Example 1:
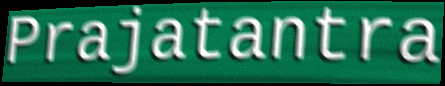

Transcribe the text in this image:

Prajatantra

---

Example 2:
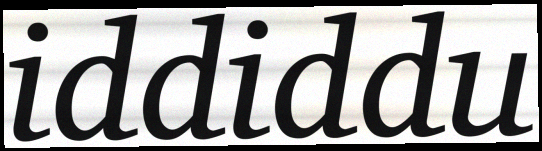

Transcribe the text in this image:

iddiddu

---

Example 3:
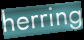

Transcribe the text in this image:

herring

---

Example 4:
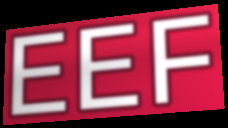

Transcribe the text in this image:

EEF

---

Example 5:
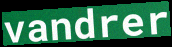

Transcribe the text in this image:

vandrer